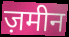
ज़मीन